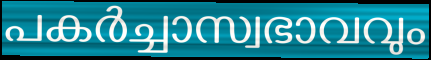
പകർച്ചാസ്വഭാവവും